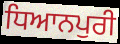
ਧਿਆਨਪੁਰੀ